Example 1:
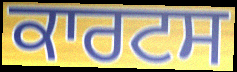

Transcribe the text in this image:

ਕਾਰਟਸ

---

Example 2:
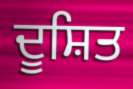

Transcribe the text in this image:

ਦੂਸ਼ਿਤ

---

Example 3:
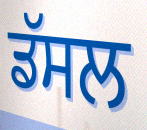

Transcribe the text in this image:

ਡੱਸਲ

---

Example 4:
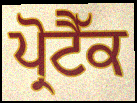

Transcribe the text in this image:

ਪ੍ਰੋਟੈੱਕ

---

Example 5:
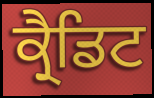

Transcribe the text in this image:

ਕ੍ਰੈਡਿਟ